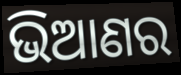
ଭିଆଣର